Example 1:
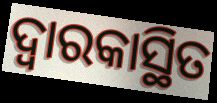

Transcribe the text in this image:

ଦ୍ୱାରକାସ୍ଥିତ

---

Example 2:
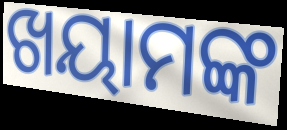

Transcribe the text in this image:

ଖୟାମଙ୍କ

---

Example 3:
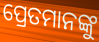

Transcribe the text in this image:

ପ୍ରେତମାନଙ୍କୁ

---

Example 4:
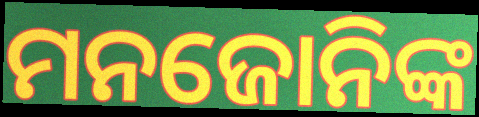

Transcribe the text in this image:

ମନଜୋନିଙ୍କ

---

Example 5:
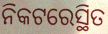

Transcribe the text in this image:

ନିକଟରେସ୍ଥିତ